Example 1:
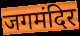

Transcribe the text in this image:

जगमंदिर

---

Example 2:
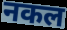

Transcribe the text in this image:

नकल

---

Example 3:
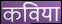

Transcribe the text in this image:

कविया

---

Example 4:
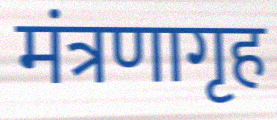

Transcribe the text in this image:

मंत्रणागृह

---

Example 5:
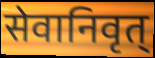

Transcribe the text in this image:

सेवानिवृत्